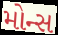
મોન્સ